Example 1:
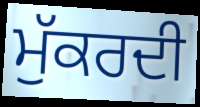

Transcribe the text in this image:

ਮੁੱਕਰਦੀ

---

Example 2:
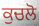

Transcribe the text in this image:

ਕੁਚਲੋ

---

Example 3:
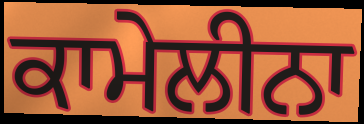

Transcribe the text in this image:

ਕਾਮੇਲੀਨਾ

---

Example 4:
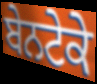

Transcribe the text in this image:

ਬੇਨਟੇਕੇ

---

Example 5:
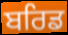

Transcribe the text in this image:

ਬਰਿਡ